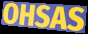
OHSAS